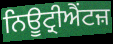
ਨਿਊਟ੍ਰੀਐਂਟਜ਼